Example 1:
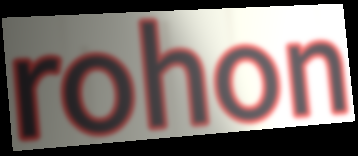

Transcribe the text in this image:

rohon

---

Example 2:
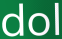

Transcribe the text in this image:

dol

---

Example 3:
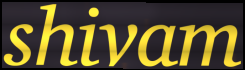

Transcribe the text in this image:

shivam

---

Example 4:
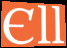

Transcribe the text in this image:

Ell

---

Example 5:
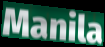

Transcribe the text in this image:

Manila